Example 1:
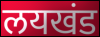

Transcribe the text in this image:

लयखंड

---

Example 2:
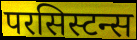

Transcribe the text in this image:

परसिस्टन्स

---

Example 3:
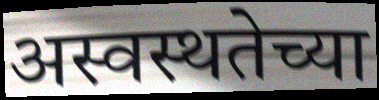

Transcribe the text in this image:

अस्वस्थतेच्या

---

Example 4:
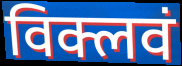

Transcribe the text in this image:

विक्लवं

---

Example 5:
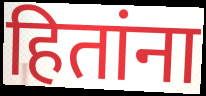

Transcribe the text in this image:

हितांना